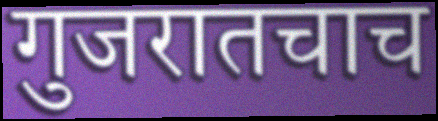
गुजरातचाच